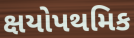
ક્ષયોપથમિક